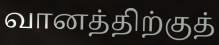
வானத்திற்குத்